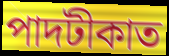
পাদটীকাত